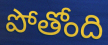
పోతోంది